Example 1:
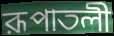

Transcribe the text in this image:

রূপাতলী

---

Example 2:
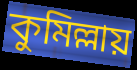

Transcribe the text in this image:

কুমিল্লায়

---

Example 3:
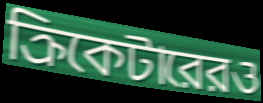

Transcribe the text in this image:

ক্রিকেটারেরও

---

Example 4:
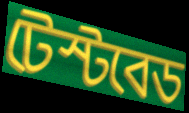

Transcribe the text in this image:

টেস্টবেড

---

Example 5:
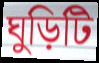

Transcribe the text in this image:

ঘুড়িটি